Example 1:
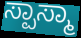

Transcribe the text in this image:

ಸ್ಪಾಸ್ಮಾ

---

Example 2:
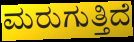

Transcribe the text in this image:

ಮರುಗುತ್ತಿದೆ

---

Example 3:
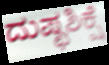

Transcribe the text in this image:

ದುಷ್ಟಶಿಕ್ಷೆ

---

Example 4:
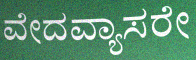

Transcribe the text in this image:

ವೇದವ್ಯಾಸರೇ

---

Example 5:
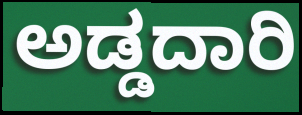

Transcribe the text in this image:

ಅಡ್ಡದಾರಿ